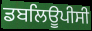
ਡਬਲਿਊਪੀਸੀ